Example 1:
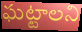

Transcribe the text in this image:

ఘట్టాలని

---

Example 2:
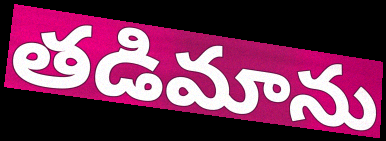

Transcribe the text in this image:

తడిమాను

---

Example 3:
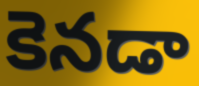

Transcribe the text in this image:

కెనడా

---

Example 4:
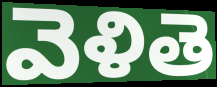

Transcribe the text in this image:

వెళితె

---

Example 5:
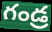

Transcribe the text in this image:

గండ్ర